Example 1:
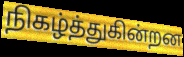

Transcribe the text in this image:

நிகழ்த்துகின்றன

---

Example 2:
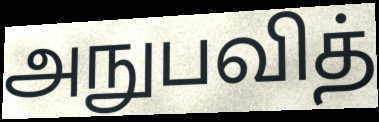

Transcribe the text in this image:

அநுபவித்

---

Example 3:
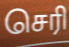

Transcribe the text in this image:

செரி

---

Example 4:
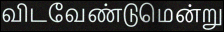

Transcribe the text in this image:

விடவேண்டுமென்று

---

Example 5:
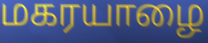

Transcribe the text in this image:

மகரயாழை